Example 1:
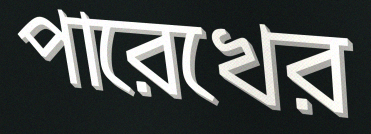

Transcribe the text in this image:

পারেখের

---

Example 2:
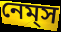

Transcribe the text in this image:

নেম্‌স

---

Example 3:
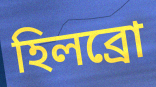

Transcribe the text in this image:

হিলব্রো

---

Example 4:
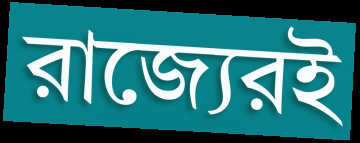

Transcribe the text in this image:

রাজ্যেরই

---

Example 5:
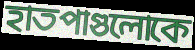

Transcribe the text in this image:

হাতপাগুলোকে